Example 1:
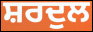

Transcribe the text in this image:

ਸ਼ਰਦੁਲ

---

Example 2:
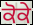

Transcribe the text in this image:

ਕੋਕੇ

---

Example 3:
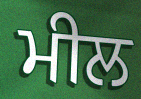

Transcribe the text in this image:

ਮੀਲ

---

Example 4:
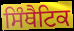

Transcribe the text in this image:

ਸਿੰਥੈਟਿਕ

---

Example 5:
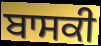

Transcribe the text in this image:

ਬਾਸਕੀ